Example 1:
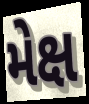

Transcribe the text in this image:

મેક્ષ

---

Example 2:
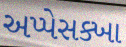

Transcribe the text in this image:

અપ્પેસક્ખા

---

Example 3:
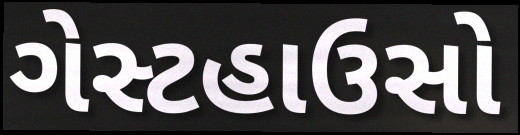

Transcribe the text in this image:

ગેસ્ટહાઉસો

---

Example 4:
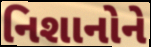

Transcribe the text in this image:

નિશાનોને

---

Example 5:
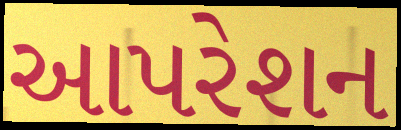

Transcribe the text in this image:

આપરેશન